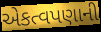
એકત્વપણાની